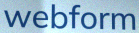
webform